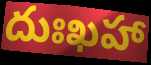
దుఃఖహా